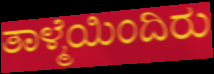
ತಾಳ್ಮೆಯಿಂದಿರು